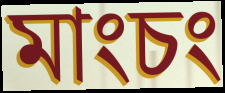
মাংচং